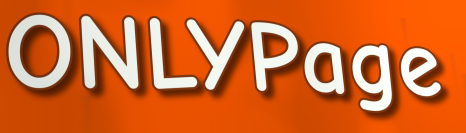
ONLYPage